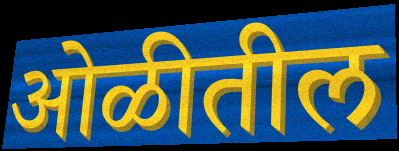
ओळीतील